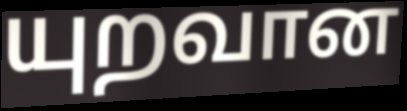
யுறவான